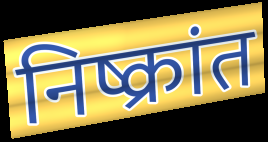
निष्क्रांत